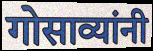
गोसाव्यांनी